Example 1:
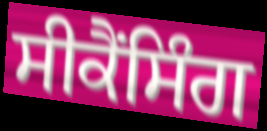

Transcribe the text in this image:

ਸੀਕੈਂਸਿੰਗ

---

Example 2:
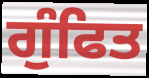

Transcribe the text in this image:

ਗੁੰਫਿਤ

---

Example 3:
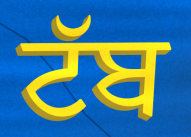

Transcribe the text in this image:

ਟੱਬ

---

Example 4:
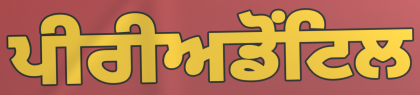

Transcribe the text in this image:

ਪੀਰੀਅਡੋਂਟਿਲ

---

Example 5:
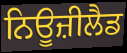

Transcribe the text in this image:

ਨਿਊਜ਼ੀਲੈਡ